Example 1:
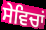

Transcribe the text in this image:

ਸੇਵਿਚਾਂ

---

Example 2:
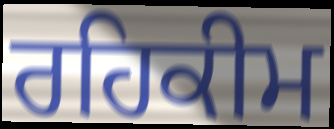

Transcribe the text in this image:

ਰਹਿਕੀਮ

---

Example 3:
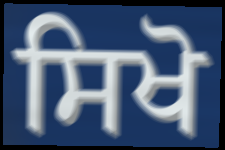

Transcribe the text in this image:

ਸਿਖੋ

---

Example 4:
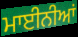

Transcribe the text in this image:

ਮਾਈਨੀਆਂ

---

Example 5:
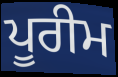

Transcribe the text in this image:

ਪੂਰੀਮ